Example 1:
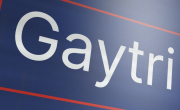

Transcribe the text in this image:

Gaytri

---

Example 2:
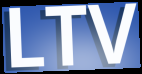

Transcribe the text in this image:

LTV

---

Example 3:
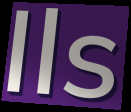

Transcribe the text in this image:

Ils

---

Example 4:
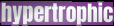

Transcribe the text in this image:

hypertrophic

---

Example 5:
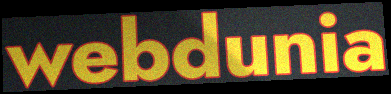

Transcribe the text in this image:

webdunia